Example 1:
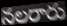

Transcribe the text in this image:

నలరారు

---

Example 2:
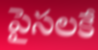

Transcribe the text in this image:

పైసలకే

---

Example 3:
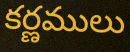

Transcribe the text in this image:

కర్ణములు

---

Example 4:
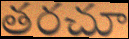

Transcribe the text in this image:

తరచూ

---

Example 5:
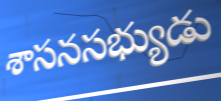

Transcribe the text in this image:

శాసనసభ్యుడు